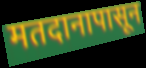
मतदानापासून